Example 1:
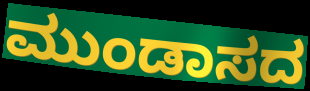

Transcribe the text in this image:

ಮುಂಡಾಸದ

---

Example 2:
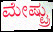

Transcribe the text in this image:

ಮೇಷ್ಟ್ರು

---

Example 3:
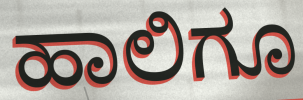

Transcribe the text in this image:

ಹಾಲಿಗೂ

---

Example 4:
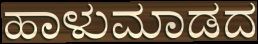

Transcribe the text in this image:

ಹಾಳುಮಾಡದ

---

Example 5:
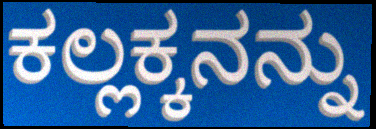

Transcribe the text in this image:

ಕಲ್ಲಕ್ಕನನ್ನು